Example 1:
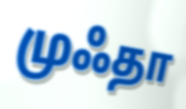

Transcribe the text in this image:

முஃதா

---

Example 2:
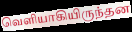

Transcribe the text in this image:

வெளியாகியிருந்தன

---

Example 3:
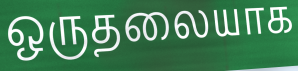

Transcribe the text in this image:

ஒருதலையாக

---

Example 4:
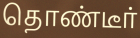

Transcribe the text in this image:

தொண்டீர்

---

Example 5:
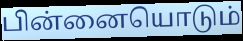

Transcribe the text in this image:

பின்னையொடும்